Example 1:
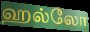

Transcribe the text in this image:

ஹல்லோ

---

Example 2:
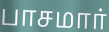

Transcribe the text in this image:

பாசமார்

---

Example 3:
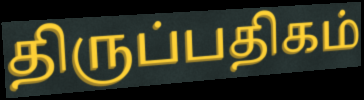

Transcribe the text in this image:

திருப்பதிகம்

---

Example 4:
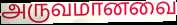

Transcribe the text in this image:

அருவமானவை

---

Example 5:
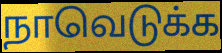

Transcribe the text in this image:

நாவெடுக்க